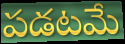
పడటమే